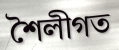
শৈলীগত